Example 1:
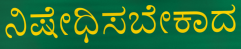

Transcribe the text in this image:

ನಿಷೇಧಿಸಬೇಕಾದ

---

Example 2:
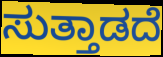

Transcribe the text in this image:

ಸುತ್ತಾಡದೆ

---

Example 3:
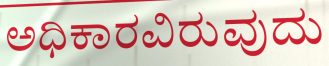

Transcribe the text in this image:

ಅಧಿಕಾರವಿರುವುದು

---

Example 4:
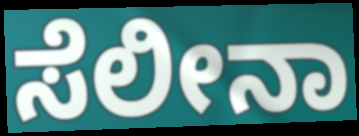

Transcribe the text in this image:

ಸೆಲೀನಾ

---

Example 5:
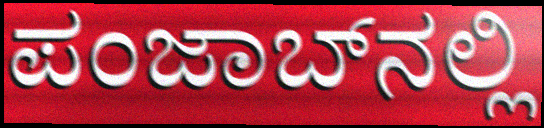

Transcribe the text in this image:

ಪಂಜಾಬ್‌ನಲ್ಲಿ